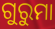
ଗୁରୁମା